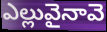
ఎల్లువైనావె